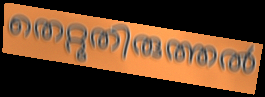
തെറ്റുതിരുത്തൽ